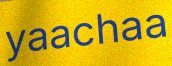
yaachaa